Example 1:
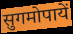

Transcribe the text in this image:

सुगमोपायें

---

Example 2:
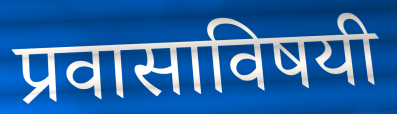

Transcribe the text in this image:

प्रवासाविषयी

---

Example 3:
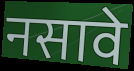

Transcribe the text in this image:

नसावे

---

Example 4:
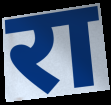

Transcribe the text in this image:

रा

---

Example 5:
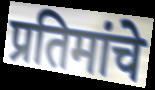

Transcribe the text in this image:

प्रतिमांचे